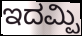
ಇದಮ್ಪಿ